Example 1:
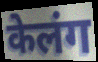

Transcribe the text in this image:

केलंग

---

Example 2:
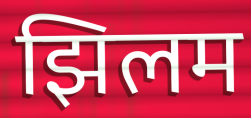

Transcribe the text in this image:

झिलम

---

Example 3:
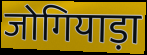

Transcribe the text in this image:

जोगियाड़ा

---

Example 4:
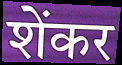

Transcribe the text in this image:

शेंकर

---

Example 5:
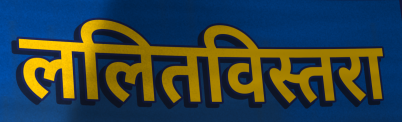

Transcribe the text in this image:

ललितविस्तरा